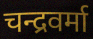
चन्द्रवर्मा